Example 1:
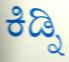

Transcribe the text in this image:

ಕಿಡ್ನಿ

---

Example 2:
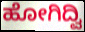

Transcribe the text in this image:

ಹೋಗಿದ್ವಿ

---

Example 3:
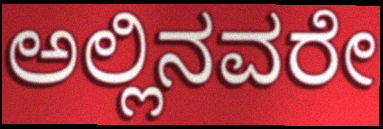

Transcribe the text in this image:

ಅಲ್ಲಿನವರೇ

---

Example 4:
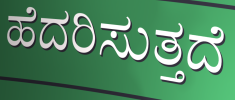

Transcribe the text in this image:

ಹೆದರಿಸುತ್ತದೆ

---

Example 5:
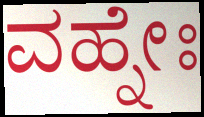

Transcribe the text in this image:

ವಹ್ನೇಃ